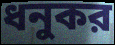
ধনুকর